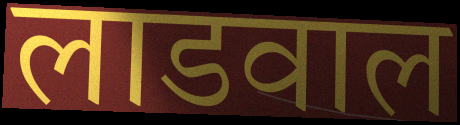
लाडवाल